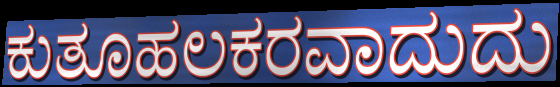
ಕುತೂಹಲಕರವಾದುದು